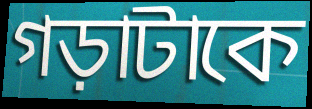
গড়াটাকে